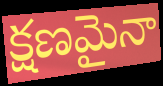
క్షణమైనా